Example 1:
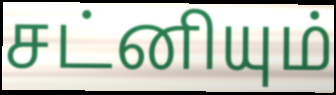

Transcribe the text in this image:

சட்னியும்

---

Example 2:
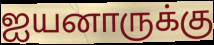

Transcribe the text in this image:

ஐயனாருக்கு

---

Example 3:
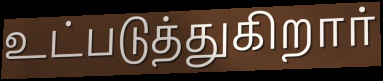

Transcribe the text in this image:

உட்படுத்துகிறார்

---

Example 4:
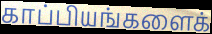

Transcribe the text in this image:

காப்பியங்களைக்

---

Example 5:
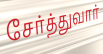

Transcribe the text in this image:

சேர்த்துவார்